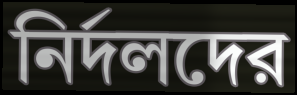
নির্দলদের